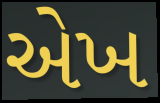
એખ